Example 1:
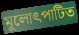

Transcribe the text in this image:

মূলোৎপাটিত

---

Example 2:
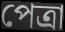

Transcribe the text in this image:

পেত্রা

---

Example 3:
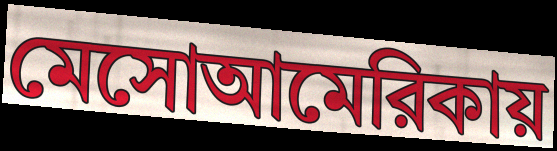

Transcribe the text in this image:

মেসোআমেরিকায়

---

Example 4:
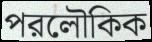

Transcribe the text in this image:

পরলৌকিক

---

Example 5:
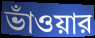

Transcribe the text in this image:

ভাঁওয়ার